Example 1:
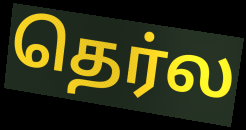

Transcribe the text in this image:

தெர்ல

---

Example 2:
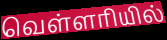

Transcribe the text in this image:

வெள்ளரியில்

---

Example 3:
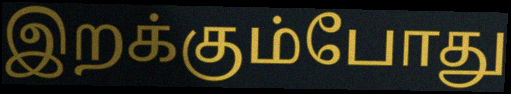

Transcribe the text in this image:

இறக்கும்போது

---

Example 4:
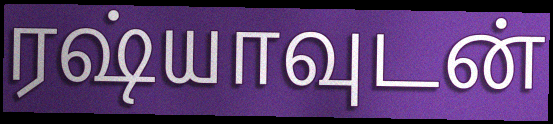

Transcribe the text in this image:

ரஷ்யாவுடன்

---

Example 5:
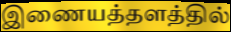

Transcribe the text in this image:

இணையத்தளத்தில்